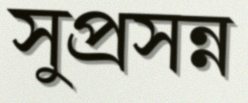
সুপ্রসন্ন